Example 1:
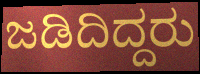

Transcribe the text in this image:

ಜಡಿದಿದ್ದರು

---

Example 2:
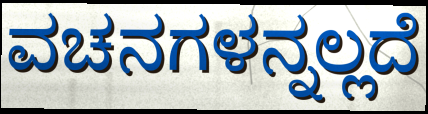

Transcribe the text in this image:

ವಚನಗಳನ್ನಲ್ಲದೆ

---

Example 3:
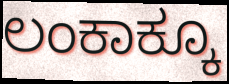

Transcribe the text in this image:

ಲಂಕಾಕ್ಕೂ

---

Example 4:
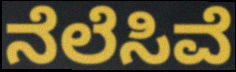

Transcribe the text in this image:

ನೆಲೆಸಿವೆ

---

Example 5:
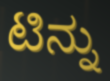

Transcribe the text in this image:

ಟಿನ್ನು